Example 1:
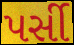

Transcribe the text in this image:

પર્સી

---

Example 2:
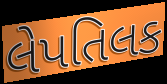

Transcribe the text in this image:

લેપતિલક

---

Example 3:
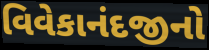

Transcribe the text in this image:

વિવેકાનંદજીનો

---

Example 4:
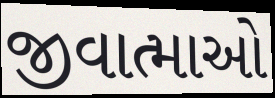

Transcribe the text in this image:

જીવાત્માઓ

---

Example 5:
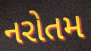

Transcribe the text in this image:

નરોતમ